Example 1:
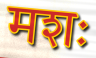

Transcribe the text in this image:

मशः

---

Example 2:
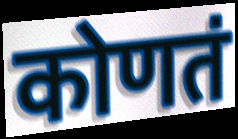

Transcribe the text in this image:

कोणतं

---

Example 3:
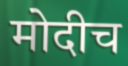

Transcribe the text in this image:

मोदीच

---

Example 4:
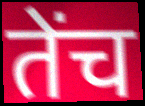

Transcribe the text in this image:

तेंच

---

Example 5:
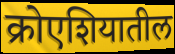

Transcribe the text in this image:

क्रोएशियातील